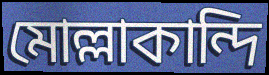
মোল্লাকান্দি